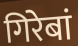
गिरेबां